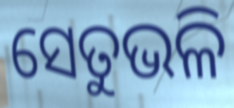
ସେତୁଭଳି